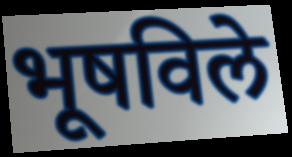
भूषविले